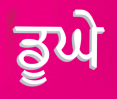
ਡੂਘੇ